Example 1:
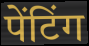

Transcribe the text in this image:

पेंटिंग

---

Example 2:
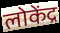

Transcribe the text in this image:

लोकेंद्र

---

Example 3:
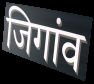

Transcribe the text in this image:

जिगांव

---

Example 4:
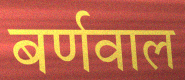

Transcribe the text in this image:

बर्णवाल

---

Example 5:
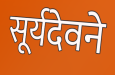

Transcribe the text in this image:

सूर्यदेवने